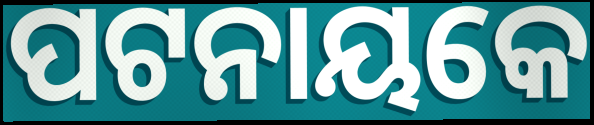
ପଟନାୟକେ